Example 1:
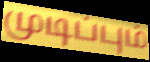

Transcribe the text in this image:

முடிப்பும்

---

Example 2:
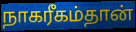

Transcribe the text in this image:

நாகரீகம்தான்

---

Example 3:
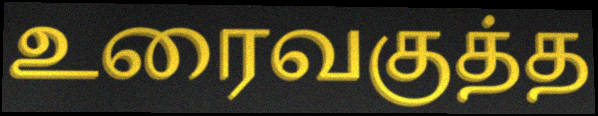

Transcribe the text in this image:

உரைவகுத்த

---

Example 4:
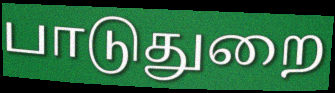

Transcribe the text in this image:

பாடுதுறை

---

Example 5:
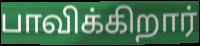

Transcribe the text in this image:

பாவிக்கிறார்